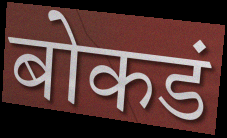
बोकडं